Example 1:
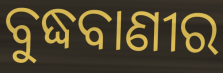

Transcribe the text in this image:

ବୁଦ୍ଧବାଣୀର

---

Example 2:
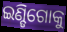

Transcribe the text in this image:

ଇଣ୍ଡିଗୋକୁ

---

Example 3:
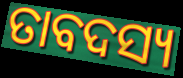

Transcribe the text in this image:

ତାବଦସ୍ୟ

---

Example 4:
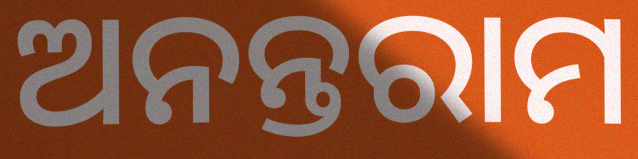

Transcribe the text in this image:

ଅନନ୍ତରାମ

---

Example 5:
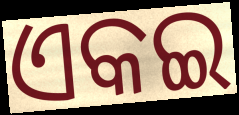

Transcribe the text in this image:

ଏକଇ